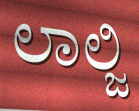
ಲಾಲ್ಜಿ